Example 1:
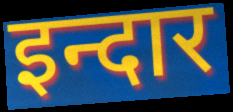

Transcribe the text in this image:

इन्दार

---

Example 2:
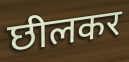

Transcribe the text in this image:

छीलकर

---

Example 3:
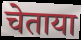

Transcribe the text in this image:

चेताया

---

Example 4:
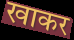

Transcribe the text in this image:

खाकर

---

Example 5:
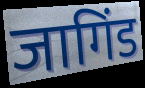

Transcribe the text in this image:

जागिंड